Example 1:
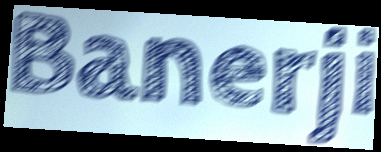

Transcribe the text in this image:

Banerji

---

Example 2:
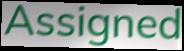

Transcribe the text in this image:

Assigned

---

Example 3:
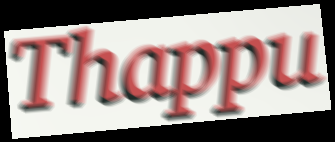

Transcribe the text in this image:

Thappu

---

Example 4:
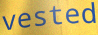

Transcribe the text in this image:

vested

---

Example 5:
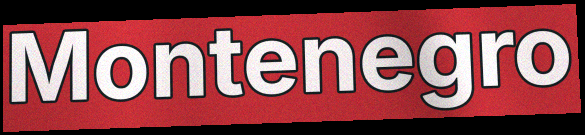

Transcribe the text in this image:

Montenegro